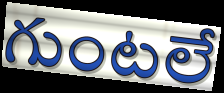
గుంటలే